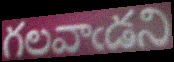
గలవాఁడని